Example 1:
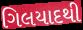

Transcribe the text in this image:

ગિલયાદથી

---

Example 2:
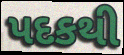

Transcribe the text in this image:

પદકથી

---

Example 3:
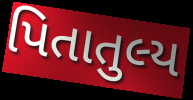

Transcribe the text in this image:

પિતાતુલ્ય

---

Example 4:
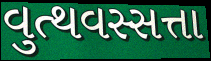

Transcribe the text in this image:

વુત્થવસ્સત્તા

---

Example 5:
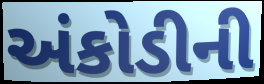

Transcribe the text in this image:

અંકોડીની